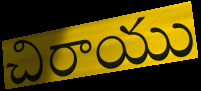
చిరాయు